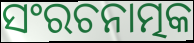
ସଂରଚନାତ୍ମକ